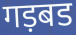
गड़बड